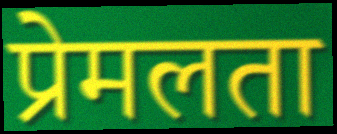
प्रेमलता